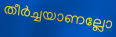
തീർച്ചയാണല്ലോ